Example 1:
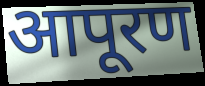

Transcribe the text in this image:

आपूरण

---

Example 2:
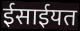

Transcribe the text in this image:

ईसाईयत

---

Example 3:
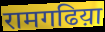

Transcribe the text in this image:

रामगढिय़ा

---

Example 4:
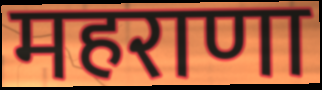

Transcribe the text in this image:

महराणा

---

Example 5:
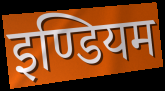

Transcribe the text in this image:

इण्डियम